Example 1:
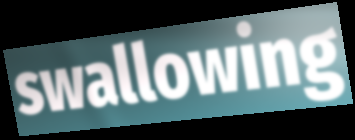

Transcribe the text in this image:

swallowing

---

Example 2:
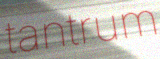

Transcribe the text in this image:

tantrum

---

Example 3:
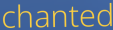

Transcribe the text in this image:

chanted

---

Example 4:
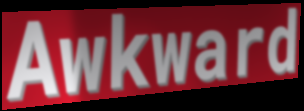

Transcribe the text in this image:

Awkward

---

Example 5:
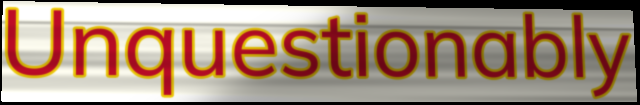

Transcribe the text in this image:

Unquestionably